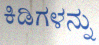
ಕಿಡಿಗಳನ್ನು